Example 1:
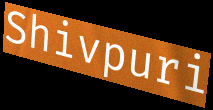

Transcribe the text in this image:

Shivpuri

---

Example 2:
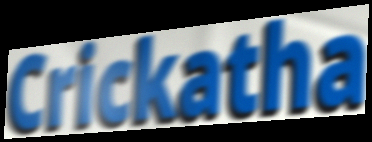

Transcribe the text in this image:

Crickatha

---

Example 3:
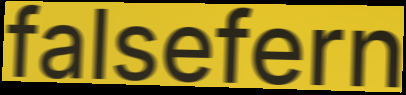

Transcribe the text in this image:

falsefern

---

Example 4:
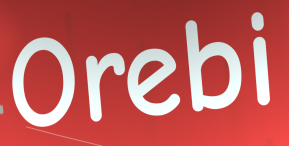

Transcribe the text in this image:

Orebi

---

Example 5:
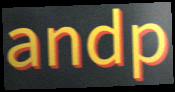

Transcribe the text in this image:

andp